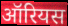
ऑरियस